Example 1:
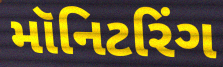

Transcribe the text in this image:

મૉનિટરિંગ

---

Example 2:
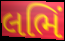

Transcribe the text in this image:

લભિં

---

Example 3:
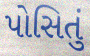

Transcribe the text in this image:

પોસિતું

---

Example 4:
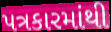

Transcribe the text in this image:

પત્રકારમાંથી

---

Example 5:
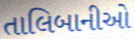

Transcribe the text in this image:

તાલિબાનીઓ